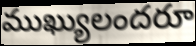
ముఖ్యులందరూ